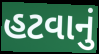
હટવાનું